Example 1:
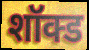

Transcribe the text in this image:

शॉक्ड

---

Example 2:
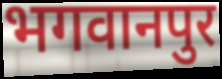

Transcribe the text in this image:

भगवानपुर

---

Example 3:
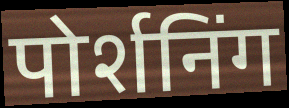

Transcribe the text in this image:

पोर्शनिंग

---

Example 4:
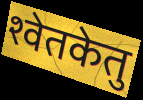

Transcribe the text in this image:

श्वेतकेतु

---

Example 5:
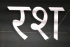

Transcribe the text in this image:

रश